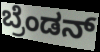
ಬ್ರೆಂಡನ್